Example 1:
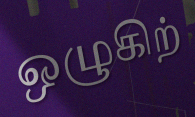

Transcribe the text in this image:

ஒழுகிற்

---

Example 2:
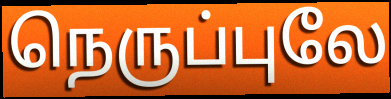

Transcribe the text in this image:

நெருப்புலே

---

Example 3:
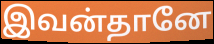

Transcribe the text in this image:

இவன்தானே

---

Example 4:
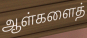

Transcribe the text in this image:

ஆள்களைத்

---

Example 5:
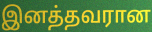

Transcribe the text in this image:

இனத்தவரான